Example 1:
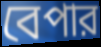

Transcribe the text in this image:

বেপার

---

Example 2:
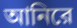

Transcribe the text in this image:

আনিরে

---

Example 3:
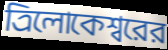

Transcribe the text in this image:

ত্রিলোকেশ্বরের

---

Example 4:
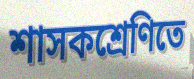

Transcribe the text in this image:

শাসকশ্রেণিতে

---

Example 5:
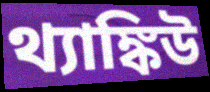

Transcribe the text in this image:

থ্যাঙ্কিউ